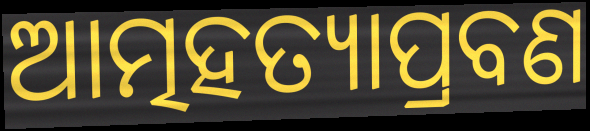
ଆତ୍ମହତ୍ୟାପ୍ରବଣ